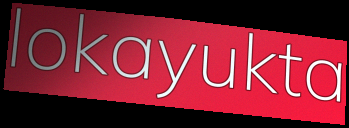
lokayukta